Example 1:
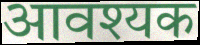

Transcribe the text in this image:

आवश्‍यक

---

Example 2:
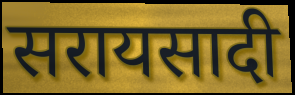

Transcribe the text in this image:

सरायसादी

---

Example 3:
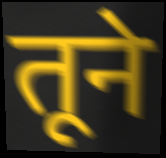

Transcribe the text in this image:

तूने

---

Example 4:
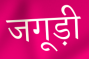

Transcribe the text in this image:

जगूड़ी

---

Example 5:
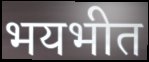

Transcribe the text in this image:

भयभीत